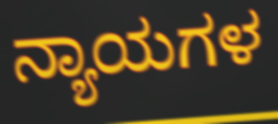
ನ್ಯಾಯಗಳ